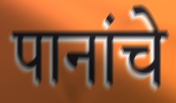
पानांचे